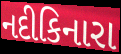
નદીકિનારા